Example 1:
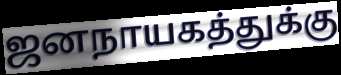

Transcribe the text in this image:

ஜனநாயகத்துக்கு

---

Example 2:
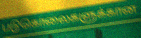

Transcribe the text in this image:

படுகொலைகளுக்கான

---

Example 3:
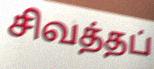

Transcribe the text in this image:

சிவத்தப்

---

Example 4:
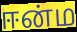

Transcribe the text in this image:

ஈன்ம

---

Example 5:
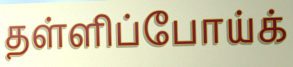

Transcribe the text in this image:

தள்ளிப்போய்க்